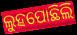
ଲୁହପୋଛିଲି